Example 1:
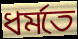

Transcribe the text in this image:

ধর্মতে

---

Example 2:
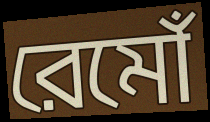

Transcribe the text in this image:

রেমোঁ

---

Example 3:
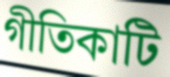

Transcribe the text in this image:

গীতিকাটি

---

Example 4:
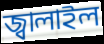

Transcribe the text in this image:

জ্বালাইল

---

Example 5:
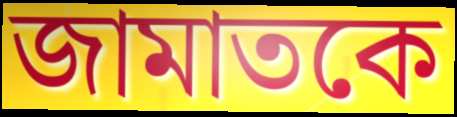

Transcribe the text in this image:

জামাতকে